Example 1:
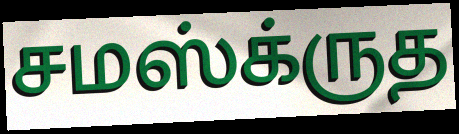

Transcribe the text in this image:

சமஸ்க்ருத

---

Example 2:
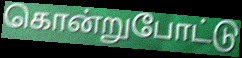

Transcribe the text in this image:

கொன்றுபோட்டு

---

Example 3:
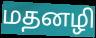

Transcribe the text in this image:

மதனழி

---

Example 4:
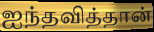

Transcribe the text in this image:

ஐந்தவித்தான்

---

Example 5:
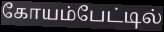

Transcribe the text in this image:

கோயம்பேட்டில்